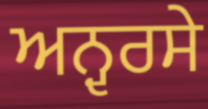
ਅਨ੍ਦਰਸੇ